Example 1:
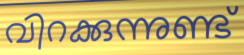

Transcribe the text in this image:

വിറക്കുന്നുണ്ട്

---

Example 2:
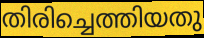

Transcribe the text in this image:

തിരിച്ചെത്തിയതു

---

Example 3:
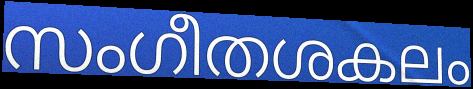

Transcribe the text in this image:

സംഗീതശകലം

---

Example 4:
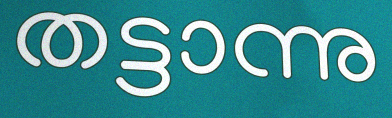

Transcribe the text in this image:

തട്ടാന്നു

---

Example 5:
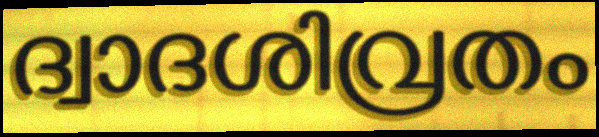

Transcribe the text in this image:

ദ്വാദശിവ്രതം